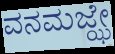
ವನಮಜ್ಝೇ